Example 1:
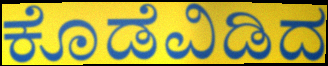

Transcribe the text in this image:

ಕೊಡೆವಿಡಿದ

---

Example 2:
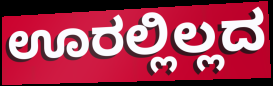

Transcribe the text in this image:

ಊರಲ್ಲಿಲ್ಲದ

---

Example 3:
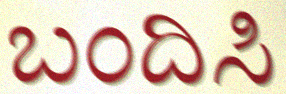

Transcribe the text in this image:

ಬಂದಿಸಿ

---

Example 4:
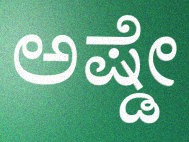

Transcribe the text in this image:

ಅಷ್ಡೇ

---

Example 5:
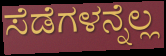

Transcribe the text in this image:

ಸೆಡೆಗಳನ್ನೆಲ್ಲ